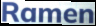
Ramen